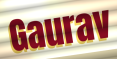
Gaurav